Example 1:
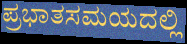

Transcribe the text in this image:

ಪ್ರಭಾತಸಮಯದಲ್ಲಿ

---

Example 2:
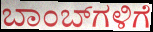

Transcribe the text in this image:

ಬಾಂಬ್‌ಗಳಿಗೆ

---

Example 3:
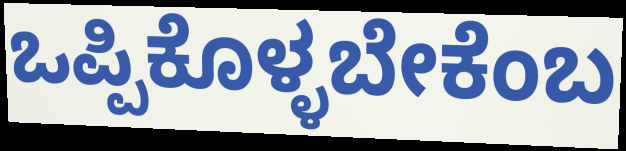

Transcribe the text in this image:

ಒಪ್ಪಿಕೊಳ್ಳಬೇಕೆಂಬ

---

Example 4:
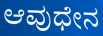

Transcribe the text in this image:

ಆವುಧೇನ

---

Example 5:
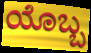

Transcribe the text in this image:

ಯೊಬ್ಬ